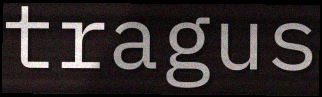
tragus